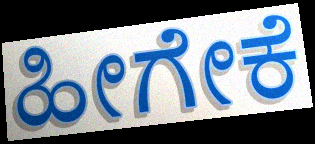
ಹೀಗೇಕೆ